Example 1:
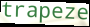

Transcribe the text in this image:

trapeze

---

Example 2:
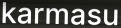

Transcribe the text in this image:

karmasu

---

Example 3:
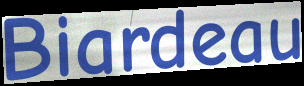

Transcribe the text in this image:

Biardeau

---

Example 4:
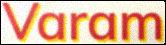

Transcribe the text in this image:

Varam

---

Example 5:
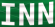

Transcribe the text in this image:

INN